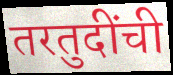
तरतुदींची